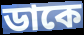
ডাকে